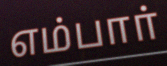
எம்பார்